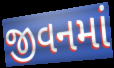
જીવનમાં